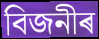
বিজনীৰ